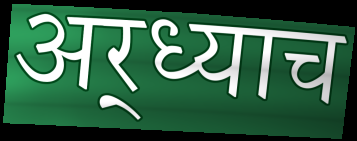
अर्ध्याच